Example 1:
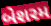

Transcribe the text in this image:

બેશરમ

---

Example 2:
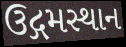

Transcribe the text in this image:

ઉદ્ગમસ્થાન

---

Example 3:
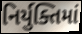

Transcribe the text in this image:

નિર્યુક્તિમાં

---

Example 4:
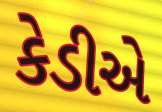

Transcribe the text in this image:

કેડીએ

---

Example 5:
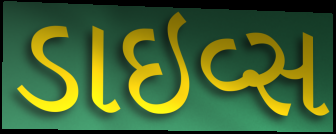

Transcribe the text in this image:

ડાઇવ્સ